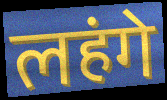
लहंगे